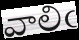
వాలిఁ